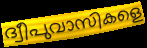
ദ്വീപുവാസികളെ